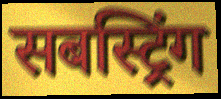
सबस्ट्रिंग